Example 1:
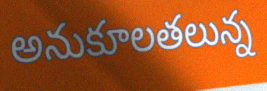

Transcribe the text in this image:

అనుకూలతలున్న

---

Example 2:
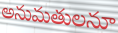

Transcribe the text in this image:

అనుమతులనూ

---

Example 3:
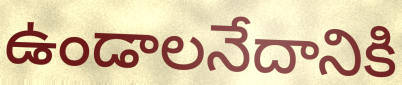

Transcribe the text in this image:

ఉండాలనేదానికి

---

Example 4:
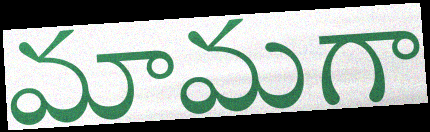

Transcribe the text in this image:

మామగా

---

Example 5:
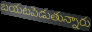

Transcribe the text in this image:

బయటపెడుతున్నారు